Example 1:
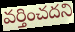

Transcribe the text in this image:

వర్తించదని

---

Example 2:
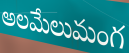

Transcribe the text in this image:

అలమేలుమంగ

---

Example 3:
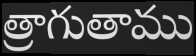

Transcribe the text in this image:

త్రాగుతాము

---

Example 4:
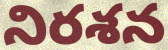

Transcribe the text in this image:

నిరశన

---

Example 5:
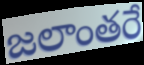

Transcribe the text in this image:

జలాంతరే